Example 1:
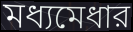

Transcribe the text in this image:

মধ্যমেধার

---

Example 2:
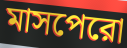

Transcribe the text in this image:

মাসপেরো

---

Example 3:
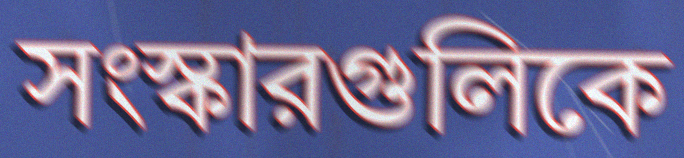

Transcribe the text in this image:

সংস্কারগুলিকে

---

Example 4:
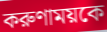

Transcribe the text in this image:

করুণাময়কে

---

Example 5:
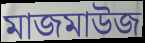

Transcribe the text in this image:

মাজমাউজ